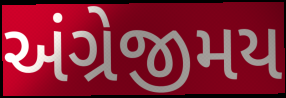
અંગ્રેજીમય